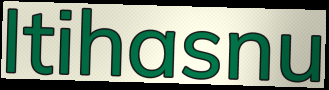
Itihasnu